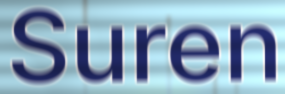
Suren